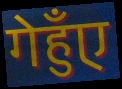
गेहुँए